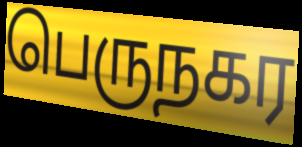
பெருநகர